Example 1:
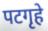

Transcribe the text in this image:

पटगृहे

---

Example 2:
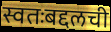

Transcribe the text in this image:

स्वतःबद्दलची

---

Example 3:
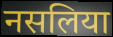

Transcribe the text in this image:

नसलिया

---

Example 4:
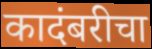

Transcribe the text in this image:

कादंबरीचा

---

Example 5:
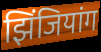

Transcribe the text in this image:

झिंजियांग